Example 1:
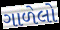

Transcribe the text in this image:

ગાળેલો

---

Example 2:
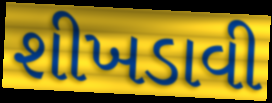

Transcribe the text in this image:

શીખડાવી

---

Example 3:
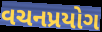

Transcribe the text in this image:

વચનપ્રયોગ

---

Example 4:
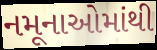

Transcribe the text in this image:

નમૂનાઓમાંથી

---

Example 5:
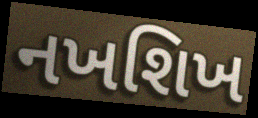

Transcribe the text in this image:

નખશિખ